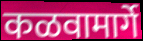
कळवामार्गे